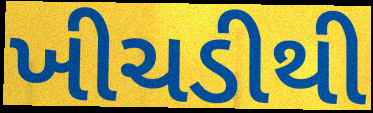
ખીચડીથી